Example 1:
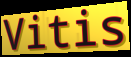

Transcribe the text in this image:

Vitis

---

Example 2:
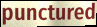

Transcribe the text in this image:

punctured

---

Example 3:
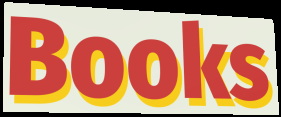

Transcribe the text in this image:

Books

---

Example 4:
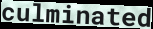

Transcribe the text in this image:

culminated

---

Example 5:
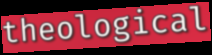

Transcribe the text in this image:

theological